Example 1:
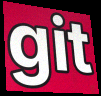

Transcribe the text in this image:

git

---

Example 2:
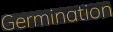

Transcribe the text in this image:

Germination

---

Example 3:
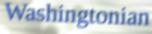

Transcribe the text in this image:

Washingtonian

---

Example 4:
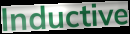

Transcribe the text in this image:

Inductive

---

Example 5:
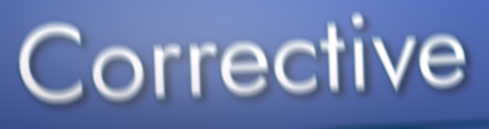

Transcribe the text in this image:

Corrective